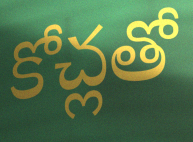
కోచ్లతో